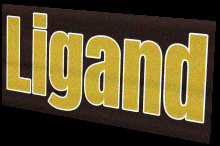
Ligand